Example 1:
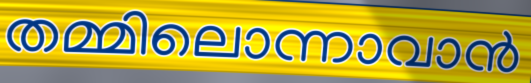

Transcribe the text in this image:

തമ്മിലൊന്നാവാൻ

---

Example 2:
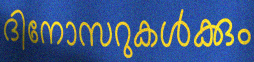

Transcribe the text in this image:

ദിനോസറുകൾക്കും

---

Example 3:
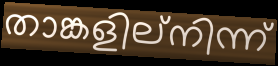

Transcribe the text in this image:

താങ്കളില്നിന്ന്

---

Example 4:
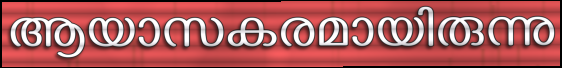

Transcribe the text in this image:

ആയാസകരമായിരുന്നു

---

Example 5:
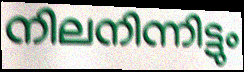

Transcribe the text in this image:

നിലനിന്നിട്ടും